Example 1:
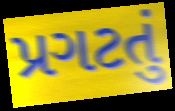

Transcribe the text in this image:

પ્રગટતું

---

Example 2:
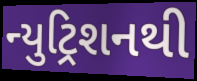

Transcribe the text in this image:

ન્યુટ્રિશનથી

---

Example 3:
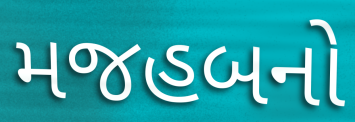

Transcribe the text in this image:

મજહબનો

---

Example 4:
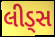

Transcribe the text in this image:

લીડ્સ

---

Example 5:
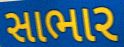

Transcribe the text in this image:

સાભાર